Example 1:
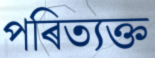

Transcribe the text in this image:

পৰিত্যক্ত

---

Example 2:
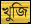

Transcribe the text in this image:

খুজি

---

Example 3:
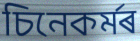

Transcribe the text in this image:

চিনেকৰ্মৰ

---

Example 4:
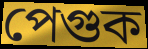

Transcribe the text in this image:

পেগুক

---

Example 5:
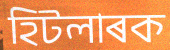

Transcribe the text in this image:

হিটলাৰক